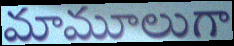
మామూలుగా